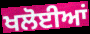
ਖਲੋਈਆਂ